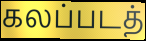
கலப்படத்